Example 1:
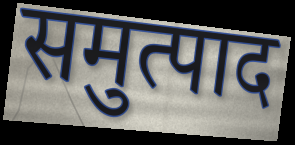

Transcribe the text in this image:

समुत्पाद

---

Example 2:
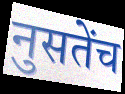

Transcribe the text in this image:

नुसतेंच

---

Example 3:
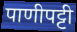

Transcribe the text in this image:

पाणीपट्टी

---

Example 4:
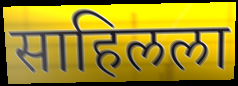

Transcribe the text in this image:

साहिलला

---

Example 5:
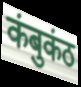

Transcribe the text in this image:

कंबुकंठ